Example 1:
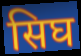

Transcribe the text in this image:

सिघ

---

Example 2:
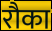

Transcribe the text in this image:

रौका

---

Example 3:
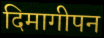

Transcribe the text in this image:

दिमागीपन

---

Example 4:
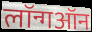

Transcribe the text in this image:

लॉन्गऑन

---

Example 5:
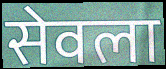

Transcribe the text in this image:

सेवला